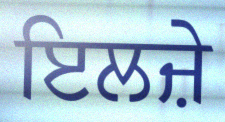
ਇਲਜ਼ੇ